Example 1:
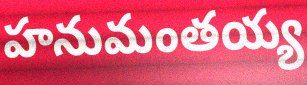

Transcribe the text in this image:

హనుమంతయ్య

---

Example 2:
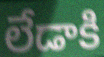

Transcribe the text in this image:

లేడాకి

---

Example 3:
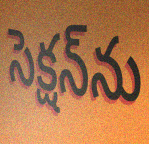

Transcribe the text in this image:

సెక్షన్‌ను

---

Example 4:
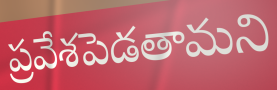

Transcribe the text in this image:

ప్రవేశపెడతామని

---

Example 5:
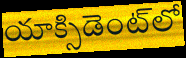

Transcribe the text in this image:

యాక్సిడెంట్‌లో